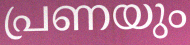
പ്രണയും